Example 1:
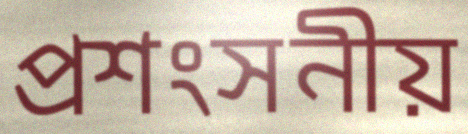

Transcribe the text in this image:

প্ৰশংসনীয়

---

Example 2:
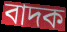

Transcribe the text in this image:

বাদক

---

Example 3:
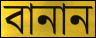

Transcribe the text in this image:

বানান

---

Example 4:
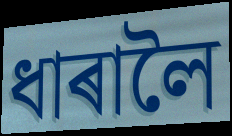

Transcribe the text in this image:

ধাৰালৈ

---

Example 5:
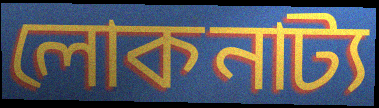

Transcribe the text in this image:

লোকনাট্য